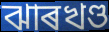
ঝাৰখণ্ড